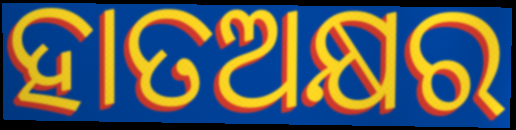
ହାତଅକ୍ଷର